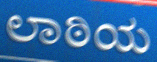
ಲಾಠಿಯ